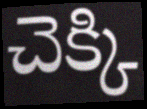
చెక్కి